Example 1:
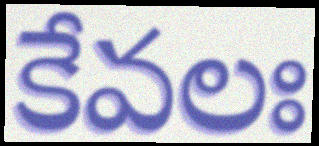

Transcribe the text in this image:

కేవలః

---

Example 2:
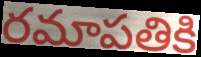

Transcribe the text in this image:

రమాపతికి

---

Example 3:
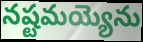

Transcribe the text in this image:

నష్టమయ్యెను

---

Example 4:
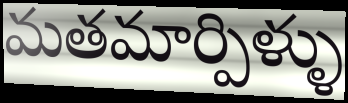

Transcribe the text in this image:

మతమార్పిళ్ళు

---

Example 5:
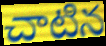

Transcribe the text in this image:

చాటిన